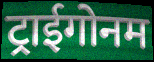
ट्राईगोनम